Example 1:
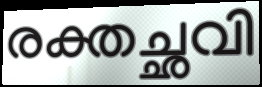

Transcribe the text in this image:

രക്തച്ഛവി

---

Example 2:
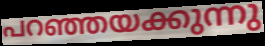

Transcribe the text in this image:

പറഞ്ഞയക്കുന്നു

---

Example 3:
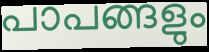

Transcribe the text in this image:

പാപങ്ങളും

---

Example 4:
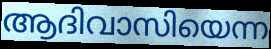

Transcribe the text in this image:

ആദിവാസിയെന്ന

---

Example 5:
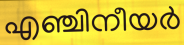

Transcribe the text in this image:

എഞ്ചിനീയർ